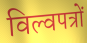
विल्वपत्रों